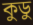
কুডু